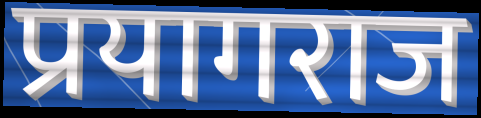
प्रयागराज